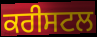
ਕਰੀਸਟਲ